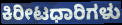
ಕಿರೀಟಧಾರಿಗಳು